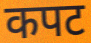
कपट